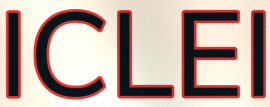
ICLEI